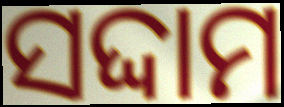
ସଦ୍ଦାମ